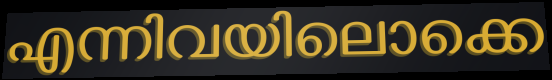
എന്നിവയിലൊക്കെ